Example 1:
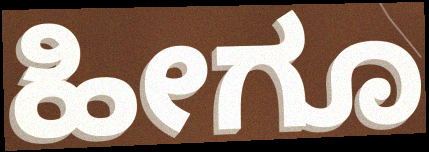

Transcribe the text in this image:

ಹೀಗೂ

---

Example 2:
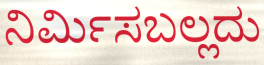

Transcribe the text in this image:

ನಿರ್ಮಿಸಬಲ್ಲದು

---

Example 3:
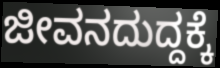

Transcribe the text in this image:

ಜೀವನದುದ್ದಕ್ಕೆ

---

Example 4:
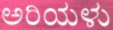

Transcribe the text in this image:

ಅರಿಯಳು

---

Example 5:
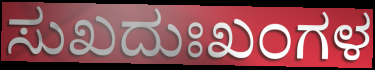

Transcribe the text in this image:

ಸುಖದುಃಖಂಗಳ